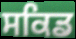
ਸਕਿਡ